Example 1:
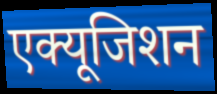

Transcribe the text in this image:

एक्यूजिशन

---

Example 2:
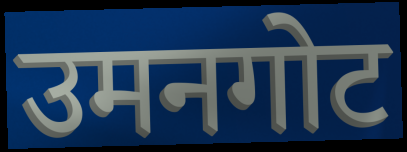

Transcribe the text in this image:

उमनगोट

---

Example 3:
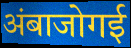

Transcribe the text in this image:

अंबाजोगई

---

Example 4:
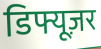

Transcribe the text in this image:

डिफ्यूज़र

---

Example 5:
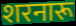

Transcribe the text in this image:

शरनारू